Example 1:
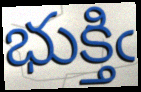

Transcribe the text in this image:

భుక్తిఁ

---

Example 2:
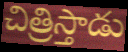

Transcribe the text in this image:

చిత్రిస్తాడు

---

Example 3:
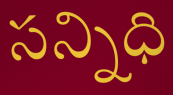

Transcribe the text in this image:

సన్నిధి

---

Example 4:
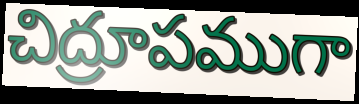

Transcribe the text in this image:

చిద్రూపముగా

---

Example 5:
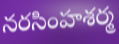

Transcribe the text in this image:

నరసింహశర్మ